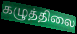
கழுத்திலை